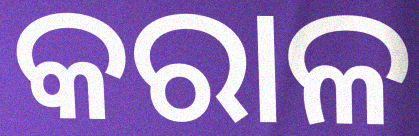
କରାଳ